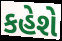
કહેશે